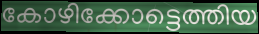
കോഴിക്കോട്ടെത്തിയ